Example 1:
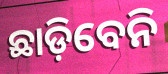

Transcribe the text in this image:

ଛାଡ଼ିବେନି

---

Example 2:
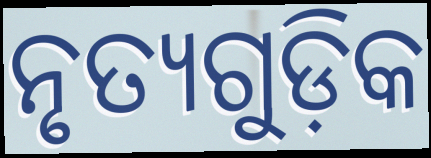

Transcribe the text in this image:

ନୃତ୍ୟଗୁଡ଼ିକ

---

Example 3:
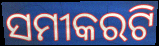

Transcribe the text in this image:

ସମୀକରଟି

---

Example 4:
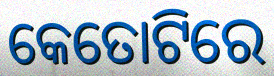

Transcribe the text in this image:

କେତୋଟିରେ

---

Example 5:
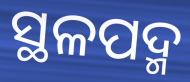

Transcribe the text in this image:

ସ୍ଥଳପଦ୍ମ